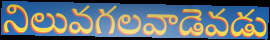
నిలువగలవాడెవడు